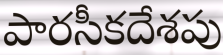
పారసీకదేశపు